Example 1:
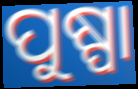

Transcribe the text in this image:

ପୁଷ୍ପା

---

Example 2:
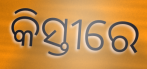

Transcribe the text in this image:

କିସ୍ତୀରେ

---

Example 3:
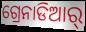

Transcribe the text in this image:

ଗ୍ରେନାଡିଆର୍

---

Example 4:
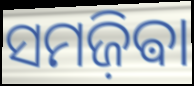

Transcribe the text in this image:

ସମଜ଼ିଵା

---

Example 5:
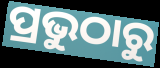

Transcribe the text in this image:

ପ୍ରଭୁଠାରୁ